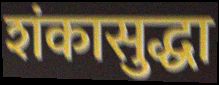
शंकासुद्धा